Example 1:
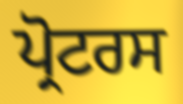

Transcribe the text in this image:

ਪ੍ਰੋਟਰਸ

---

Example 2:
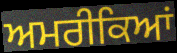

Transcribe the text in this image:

ਅਮਰੀਕਿਆਂ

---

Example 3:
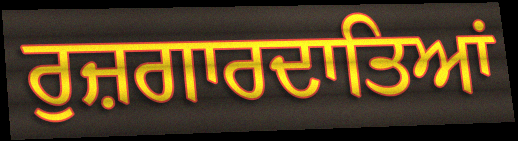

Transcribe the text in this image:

ਰੁਜ਼ਗਾਰਦਾਤਿਆਂ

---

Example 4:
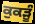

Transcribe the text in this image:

ਕੁਕੜੂੰ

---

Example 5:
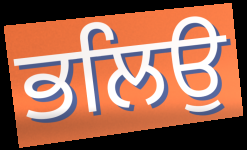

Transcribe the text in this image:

ਭਲਿਉ